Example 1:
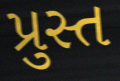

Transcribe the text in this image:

પ્રુસ્ત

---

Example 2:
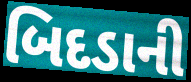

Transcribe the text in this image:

બિદડાની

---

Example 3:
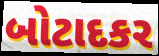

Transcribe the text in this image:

બોટાદકર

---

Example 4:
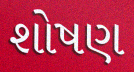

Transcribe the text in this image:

શોષણ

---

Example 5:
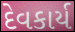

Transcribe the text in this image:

દેવકાર્ય